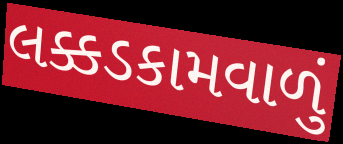
લક્કડકામવાળું